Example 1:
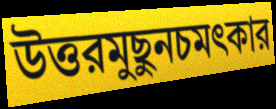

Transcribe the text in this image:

উত্তরমুছুনচমৎকার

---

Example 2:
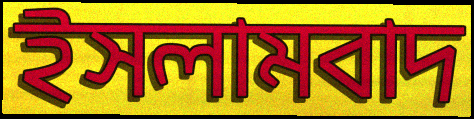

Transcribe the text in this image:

ইসলামবাদ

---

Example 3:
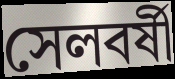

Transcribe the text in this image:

সেলবর্ষী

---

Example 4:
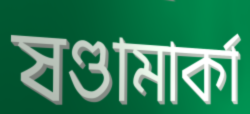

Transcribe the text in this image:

ষণ্ডামার্কা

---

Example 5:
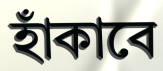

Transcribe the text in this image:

হাঁকাবে